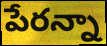
పేరన్నా